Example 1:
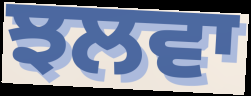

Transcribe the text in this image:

ਝਲਵਾ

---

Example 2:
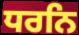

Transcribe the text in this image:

ਧਰਨਿ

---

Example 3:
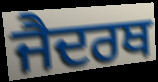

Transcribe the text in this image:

ਜੈਦਰਥ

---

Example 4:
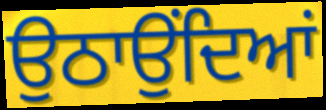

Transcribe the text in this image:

ਉਠਾਉਂਦਿਆਂ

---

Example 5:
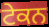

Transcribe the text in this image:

ਟੇਕਨ